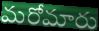
మరోమారు